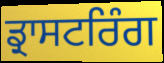
ਡ੍ਰਾਸਟਰਿੰਗ